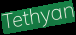
Tethyan